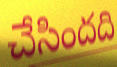
చేసిందది